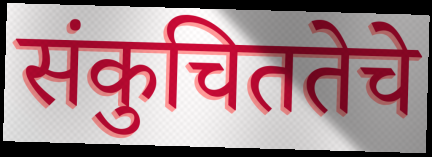
संकुचिततेचे